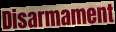
Disarmament